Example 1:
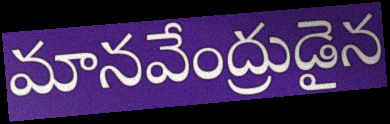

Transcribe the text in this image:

మానవేంద్రుడైన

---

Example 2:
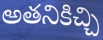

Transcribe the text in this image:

అతనికిచ్చి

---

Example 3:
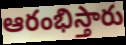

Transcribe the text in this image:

ఆరంభిస్తారు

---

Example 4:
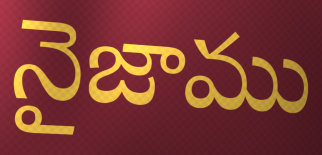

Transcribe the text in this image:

నైజాము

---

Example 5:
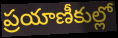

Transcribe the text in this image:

ప్రయాణీకుల్లో